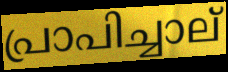
പ്രാപിച്ചാല്